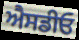
ਐਸਡੀਓ